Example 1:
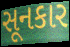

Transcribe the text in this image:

સૂનકાર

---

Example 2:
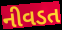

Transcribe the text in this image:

નીવડત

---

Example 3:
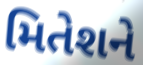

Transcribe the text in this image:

મિતેશને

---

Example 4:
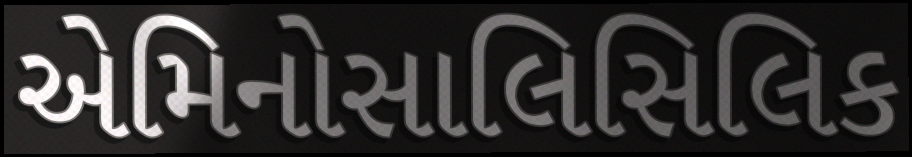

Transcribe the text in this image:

એમિનોસાલિસિલિક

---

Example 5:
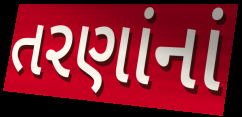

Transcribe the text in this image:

તરણાંનાં